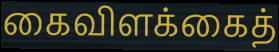
கைவிளக்கைத்